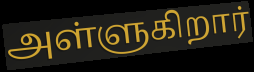
அள்ளுகிறார்